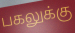
பகலுக்கு